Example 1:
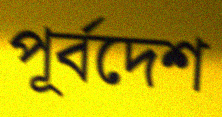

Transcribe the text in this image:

পূর্বদেশ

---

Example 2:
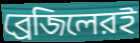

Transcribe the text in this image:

ব্রেজিলেরই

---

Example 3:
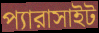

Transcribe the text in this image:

প্যারাসাইট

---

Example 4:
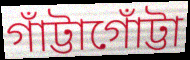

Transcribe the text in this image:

গাঁট্টাগোঁট্টা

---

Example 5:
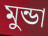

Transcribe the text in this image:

মুন্ডা